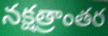
నక్షత్రాంతర